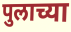
पुलाच्या